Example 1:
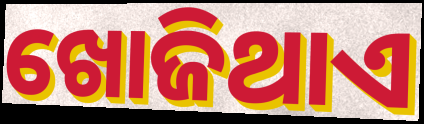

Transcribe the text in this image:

ଖୋଜିଥାଏ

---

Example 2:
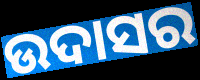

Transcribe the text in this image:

ଉଦାସର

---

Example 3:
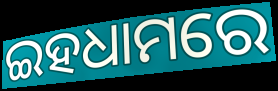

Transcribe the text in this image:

ଇହଧାମରେ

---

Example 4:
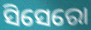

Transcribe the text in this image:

ସିସେରୋ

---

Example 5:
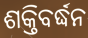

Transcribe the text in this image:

ଶକ୍ତିବର୍ଦ୍ଧନ